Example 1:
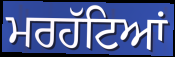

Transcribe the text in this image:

ਮਰਹੱਟਿਆਂ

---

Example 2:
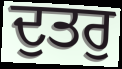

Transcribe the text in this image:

ਦੁਤਰੁ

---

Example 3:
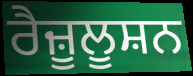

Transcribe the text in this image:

ਰੈਜ਼ੂਲੂਸ਼ਨ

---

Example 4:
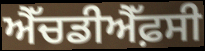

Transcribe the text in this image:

ਐੱਚਡੀਐੱਫ਼ਸੀ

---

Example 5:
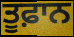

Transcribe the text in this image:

ਤੂਫ਼ਾਨ